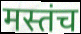
मस्तंच